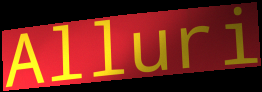
Alluri